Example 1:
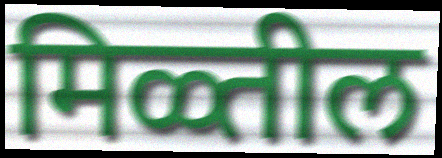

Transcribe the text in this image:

मिळ्तील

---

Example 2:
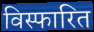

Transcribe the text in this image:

विस्फारित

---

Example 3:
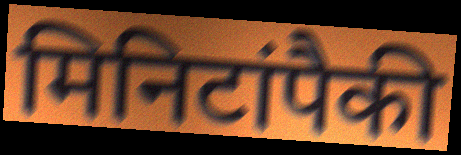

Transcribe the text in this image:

मिनिटांपैकी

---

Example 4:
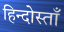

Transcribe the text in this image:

हिन्दोस्ताँ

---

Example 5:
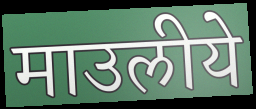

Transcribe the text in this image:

माउलीये